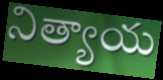
నిత్యాయ